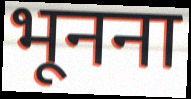
भूनना